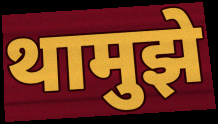
थामुझे